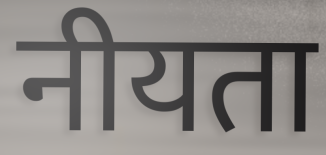
नीयता